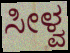
ಸೀಳ್ವ